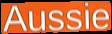
Aussie